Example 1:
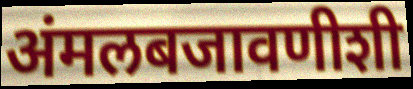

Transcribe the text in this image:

अंमलबजावणीशी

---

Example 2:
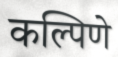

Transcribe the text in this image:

कल्पिणे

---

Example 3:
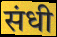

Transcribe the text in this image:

संधी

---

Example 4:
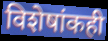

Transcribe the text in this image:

विशेषांकही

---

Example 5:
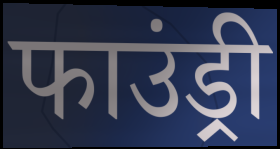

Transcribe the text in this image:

फाउंड्री